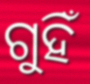
ଗୁହିଁ